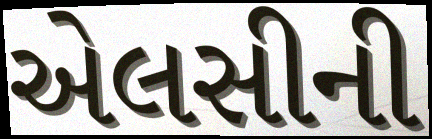
એલસીની